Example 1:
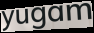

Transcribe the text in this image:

yugam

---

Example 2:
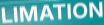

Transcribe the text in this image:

LIMATION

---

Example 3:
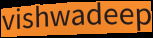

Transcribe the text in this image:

vishwadeep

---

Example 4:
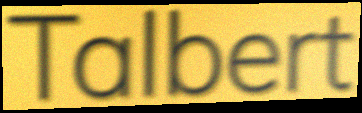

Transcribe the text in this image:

Talbert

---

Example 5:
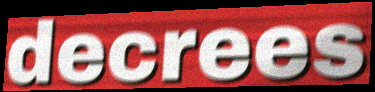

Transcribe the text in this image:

decrees